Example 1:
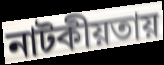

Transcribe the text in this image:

নাটকীয়তায়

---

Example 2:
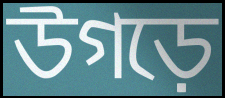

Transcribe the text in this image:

উগড়ে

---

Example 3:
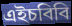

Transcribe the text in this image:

এইচবিবি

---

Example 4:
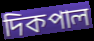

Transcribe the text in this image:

দিকপাল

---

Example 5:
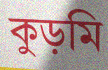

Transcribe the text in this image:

কুড়মি